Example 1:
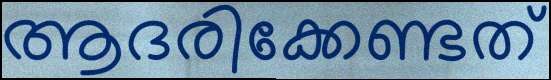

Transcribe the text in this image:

ആദരിക്കേണ്ടത്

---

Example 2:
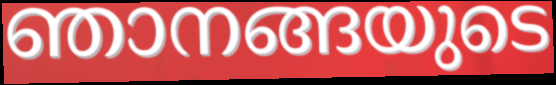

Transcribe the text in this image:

ഞാനങ്ങയുടെ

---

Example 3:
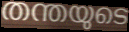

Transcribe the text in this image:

തന്തയുടെ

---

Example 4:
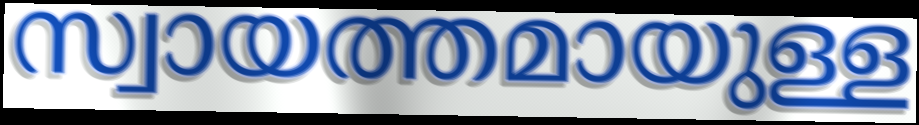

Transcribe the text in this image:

സ്വായത്തമായുള്ള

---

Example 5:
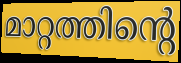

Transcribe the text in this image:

മാറ്റത്തിന്റെ